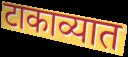
टाकाव्यात